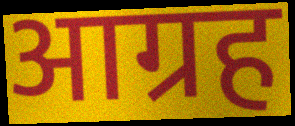
आग्रह